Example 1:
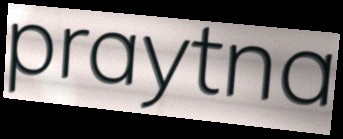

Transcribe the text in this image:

praytna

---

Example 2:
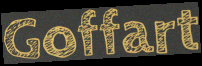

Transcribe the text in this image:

Goffart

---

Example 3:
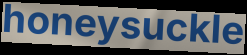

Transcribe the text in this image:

honeysuckle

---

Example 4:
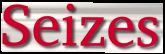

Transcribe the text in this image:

Seizes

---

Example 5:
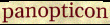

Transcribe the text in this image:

panopticon